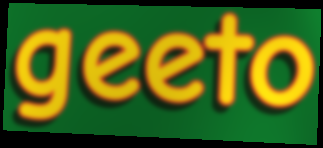
geeto